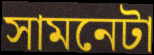
সামনেটা